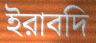
ইরাবদি